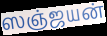
ஸஞ்ஜயன்